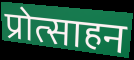
प्रोत्‍साहन